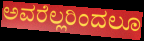
ಅವರೆಲ್ಲರಿಂದಲೂ